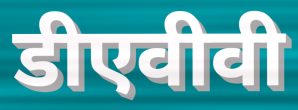
डीएवीवी